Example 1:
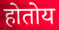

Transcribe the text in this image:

होतोय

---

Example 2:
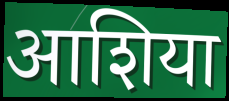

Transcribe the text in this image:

आशिया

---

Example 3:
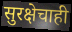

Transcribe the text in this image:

सुरक्षेचाही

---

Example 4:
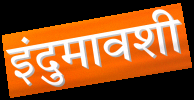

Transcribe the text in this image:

इंदुमावशी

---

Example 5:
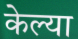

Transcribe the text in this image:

केल्या